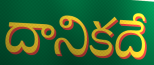
దానికదే